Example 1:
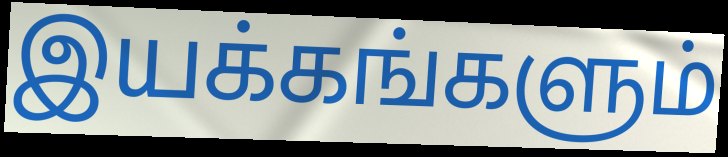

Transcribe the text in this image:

இயக்கங்களும்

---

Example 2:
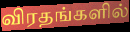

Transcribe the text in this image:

விரதங்களில்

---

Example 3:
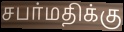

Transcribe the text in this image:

சபர்மதிக்கு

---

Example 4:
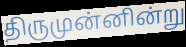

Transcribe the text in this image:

திருமுன்னின்று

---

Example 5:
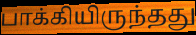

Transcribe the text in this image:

பாக்கியிருந்தது